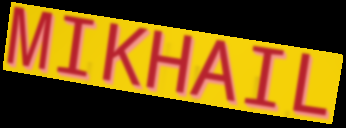
MIKHAIL